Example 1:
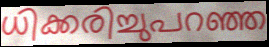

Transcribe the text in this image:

ധിക്കരിച്ചുപറഞ്ഞ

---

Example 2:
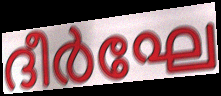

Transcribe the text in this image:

ദീർഘേ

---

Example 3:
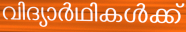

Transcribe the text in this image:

വിദ്യാർഥികൾക്ക്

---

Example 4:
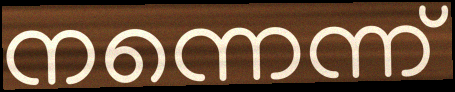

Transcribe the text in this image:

നന്നെന്ന്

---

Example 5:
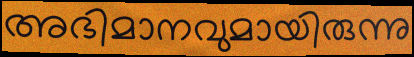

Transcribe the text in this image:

അഭിമാനവുമായിരുന്നു